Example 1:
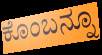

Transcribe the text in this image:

ಕೊಂಬನ್ನೂ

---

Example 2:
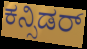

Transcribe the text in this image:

ಕನ್ಸಿಡರ್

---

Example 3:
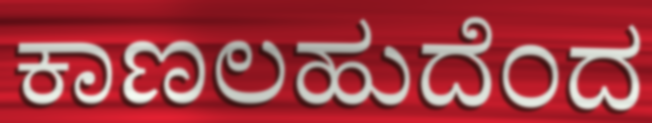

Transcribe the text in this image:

ಕಾಣಲಹುದೆಂದ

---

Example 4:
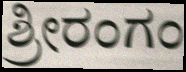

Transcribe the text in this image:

ಶ್ರೀರಂಗಂ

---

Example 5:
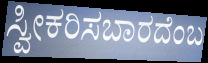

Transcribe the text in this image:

ಸ್ವೀಕರಿಸಬಾರದೆಂಬ